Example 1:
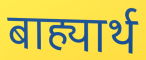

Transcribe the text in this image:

बाह्यार्थ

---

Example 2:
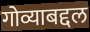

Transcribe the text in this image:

गोव्याबद्दल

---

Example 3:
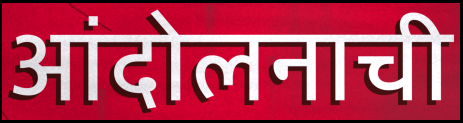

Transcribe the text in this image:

आंदोलनाची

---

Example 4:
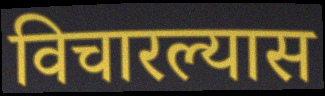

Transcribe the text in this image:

विचारल्यास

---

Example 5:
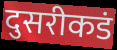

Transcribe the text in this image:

दुसरीकडं